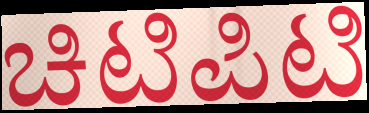
ಚಿಟಿಪಿಟಿ